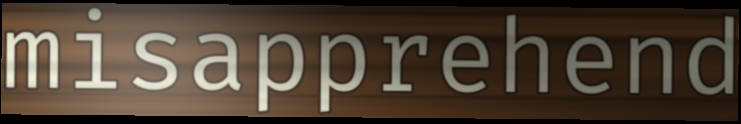
misapprehend